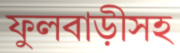
ফুলবাড়ীসহ